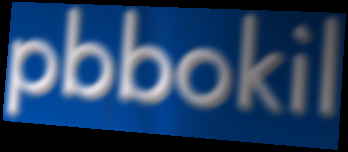
pbbokil